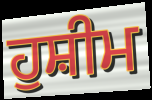
ਹੁਸ਼ੀਮ